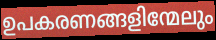
ഉപകരണങ്ങളിന്മേലും